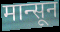
मान्सून